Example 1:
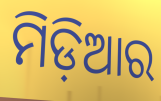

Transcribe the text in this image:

ମିଡ଼ିଆର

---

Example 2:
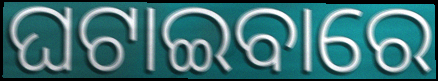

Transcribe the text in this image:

ଘଟାଇବାରେ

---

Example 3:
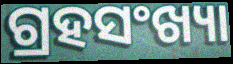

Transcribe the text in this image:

ଗ୍ରହସଂଖ୍ୟା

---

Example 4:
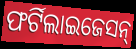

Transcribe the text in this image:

ଫର୍ଟିଲାଇଜେସନ୍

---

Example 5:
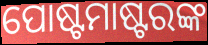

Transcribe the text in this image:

ପୋଷ୍ଟମାଷ୍ଟରଙ୍କ